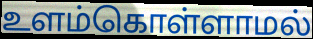
உளம்கொள்ளாமல்